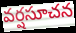
వర్షసూచన